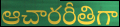
ఆచారరీతిగా